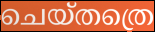
ചെയ്തത്രെ